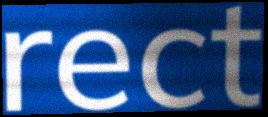
rect